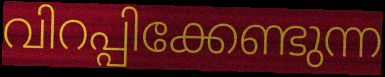
വിറപ്പിക്കേണ്ടുന്ന